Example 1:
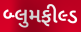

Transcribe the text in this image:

બ્લુમફીલ્ડ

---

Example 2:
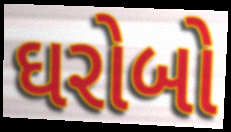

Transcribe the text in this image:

ઘરોબો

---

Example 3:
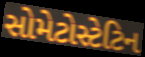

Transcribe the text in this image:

સોમેટોસ્ટેટિન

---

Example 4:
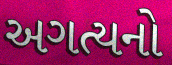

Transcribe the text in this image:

અગત્યનો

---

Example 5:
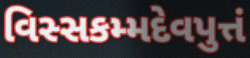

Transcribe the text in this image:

વિસ્સકમ્મદેવપુત્તં